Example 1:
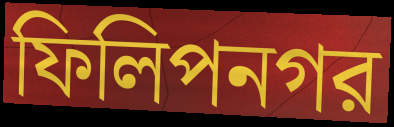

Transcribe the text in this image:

ফিলিপনগর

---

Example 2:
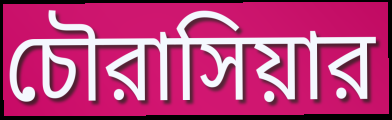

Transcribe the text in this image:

চৌরাসিয়ার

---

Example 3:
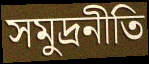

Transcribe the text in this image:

সমুদ্রনীতি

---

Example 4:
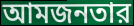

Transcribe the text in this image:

আমজনতার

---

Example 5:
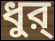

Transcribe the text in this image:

ধুর্